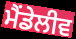
ਮੈਂਡੇਲੀਵ